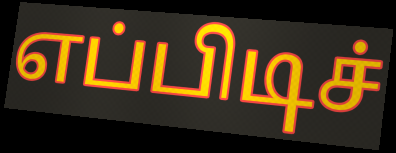
எப்பிடிச்